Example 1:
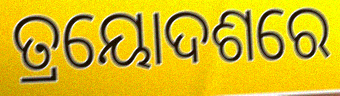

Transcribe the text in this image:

ତ୍ରୟୋଦଶରେ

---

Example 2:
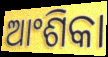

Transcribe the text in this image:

ଆଂଶିକା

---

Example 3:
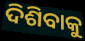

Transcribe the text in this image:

ଦିଶିବାକୁ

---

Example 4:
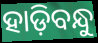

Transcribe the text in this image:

ହାଡ଼ିବନ୍ଧୁ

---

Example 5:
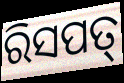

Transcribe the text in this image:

ରିସପତ୍